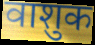
वाशुक